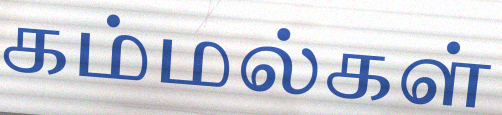
கம்மல்கள்